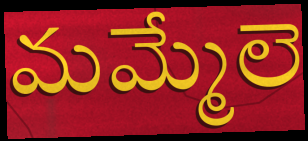
మమ్మేలె